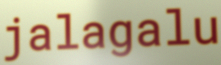
jalagalu